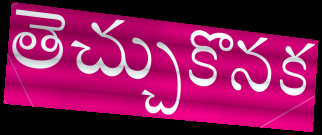
తెచ్చుకొనక